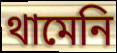
থামেনি